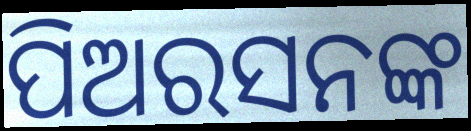
ପିଅରସନଙ୍କ